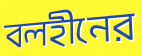
বলহীনের